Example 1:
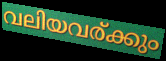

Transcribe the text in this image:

വലിയവര്ക്കും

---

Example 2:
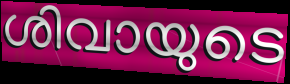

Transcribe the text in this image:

ശിവായുടെ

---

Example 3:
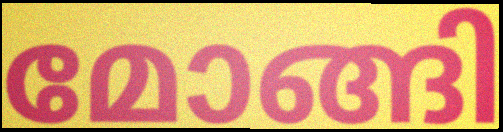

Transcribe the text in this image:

മോങ്ങി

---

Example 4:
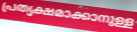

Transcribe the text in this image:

പ്രത്യക്ഷമാക്കാനുള്ള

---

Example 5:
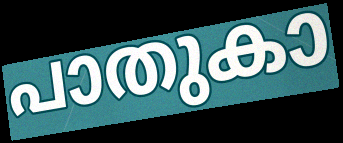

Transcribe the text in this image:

പാതുകാ